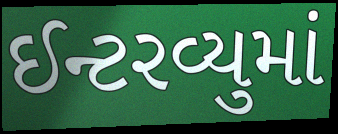
ઈન્ટરવ્યુમાં